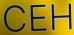
CEH